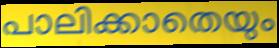
പാലിക്കാതെയും